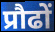
प्रौढों